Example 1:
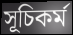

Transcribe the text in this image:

সূচিকৰ্ম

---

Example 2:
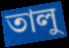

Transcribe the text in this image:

তালু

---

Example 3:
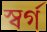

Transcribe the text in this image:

স্বৰ্গ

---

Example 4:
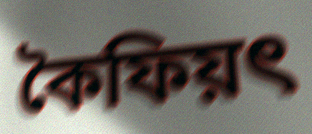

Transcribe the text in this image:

কৈফিয়ৎ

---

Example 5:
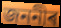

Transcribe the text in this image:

জননীৰ